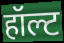
हॉल्‍ट